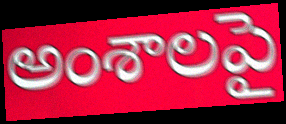
అంశాలపై